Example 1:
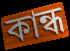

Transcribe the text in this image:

কান্ধ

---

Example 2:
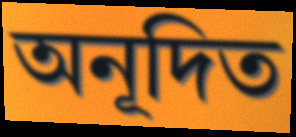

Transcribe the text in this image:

অনূদিত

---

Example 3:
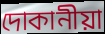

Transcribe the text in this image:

দোকানীয়া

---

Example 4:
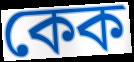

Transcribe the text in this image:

কেক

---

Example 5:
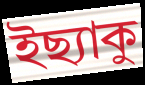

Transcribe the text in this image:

ইছ্যাকু